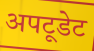
अपटूडेट